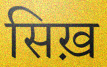
सिख़